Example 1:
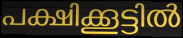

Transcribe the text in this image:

പക്ഷിക്കൂട്ടിൽ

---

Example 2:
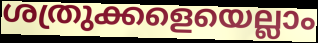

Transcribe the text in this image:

ശത്രുക്കളെയെല്ലാം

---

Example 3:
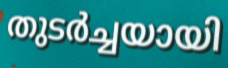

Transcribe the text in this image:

തുടർച്ചയായി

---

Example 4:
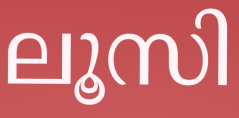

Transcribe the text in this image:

ലൂസി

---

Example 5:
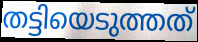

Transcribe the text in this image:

തട്ടിയെടുത്തത്